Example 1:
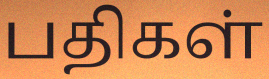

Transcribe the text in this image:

பதிகள்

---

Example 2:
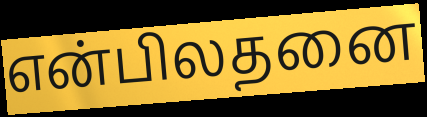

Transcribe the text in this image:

என்பிலதனை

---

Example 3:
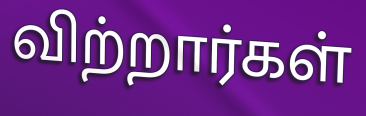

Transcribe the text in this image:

விற்றார்கள்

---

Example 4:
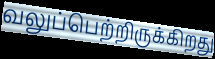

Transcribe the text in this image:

வலுப்பெற்றிருக்கிறது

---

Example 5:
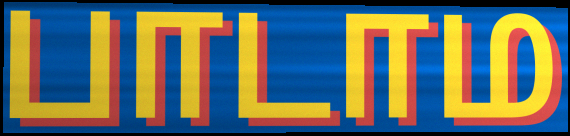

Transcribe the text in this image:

பாடாம